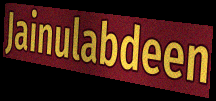
Jainulabdeen